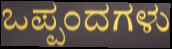
ಒಪ್ಪಂದಗಳು